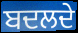
ਬਦਲਦੇ